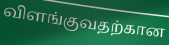
விளங்குவதற்கான